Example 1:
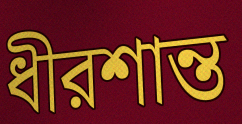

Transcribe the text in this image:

ধীরশান্ত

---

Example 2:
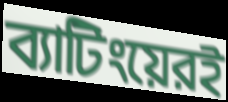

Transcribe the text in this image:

ব্যাটিংয়েরই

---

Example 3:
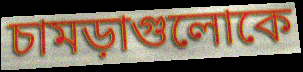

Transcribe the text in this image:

চামড়াগুলোকে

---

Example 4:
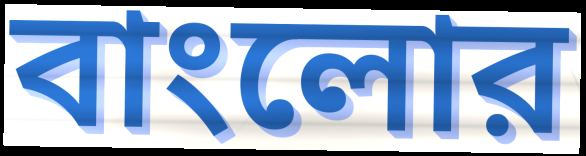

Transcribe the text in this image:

বাংলোর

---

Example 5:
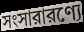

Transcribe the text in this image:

সংসারারণ্যে